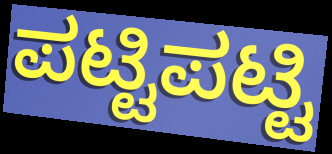
ಪಟ್ಟಿಪಟ್ಟಿ